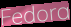
Fedora